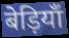
बेड़ियाँ